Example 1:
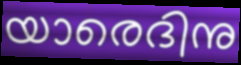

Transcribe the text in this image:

യാരെദിനു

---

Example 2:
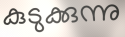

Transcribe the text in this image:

കുടുക്കുന്നു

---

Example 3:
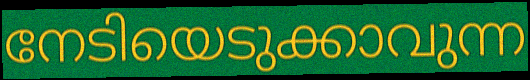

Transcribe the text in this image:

നേടിയെടുക്കാവുന്ന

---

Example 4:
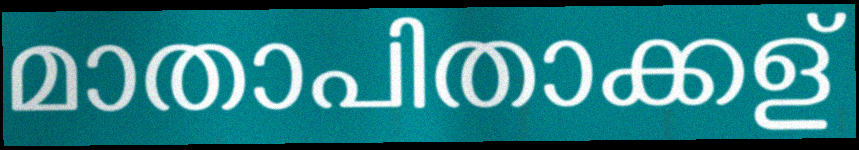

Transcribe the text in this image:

മാതാപിതാക്കള്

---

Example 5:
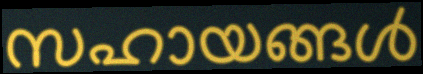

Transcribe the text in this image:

സഹായങ്ങൾ